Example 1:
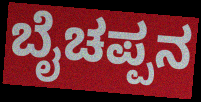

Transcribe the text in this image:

ಬೈಚಪ್ಪನ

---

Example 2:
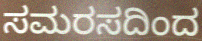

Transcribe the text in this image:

ಸಮರಸದಿಂದ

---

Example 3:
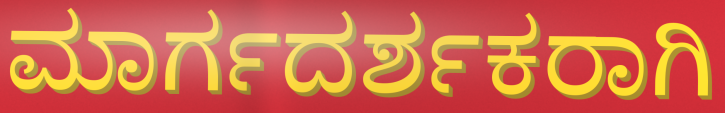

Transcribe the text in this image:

ಮಾರ್ಗದರ್ಶಕರಾಗಿ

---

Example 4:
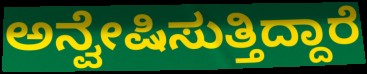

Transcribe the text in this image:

ಅನ್ವೇಷಿಸುತ್ತಿದ್ದಾರೆ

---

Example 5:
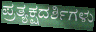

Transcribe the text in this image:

ಪ್ರತ್ಯಕ್ಷದರ್ಶಿಗಳು